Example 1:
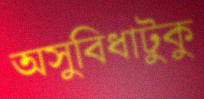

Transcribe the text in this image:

অসুবিধাটুকু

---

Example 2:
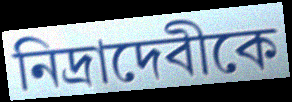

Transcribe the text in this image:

নিদ্রাদেবীকে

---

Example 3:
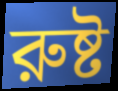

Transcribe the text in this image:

রুষ্ট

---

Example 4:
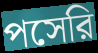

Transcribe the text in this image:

পসেরি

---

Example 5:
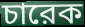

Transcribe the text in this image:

চারেক